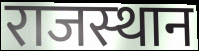
राजस्‍थान